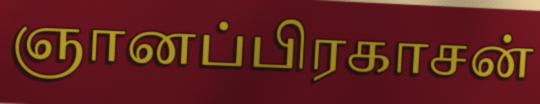
ஞானப்பிரகாசன்